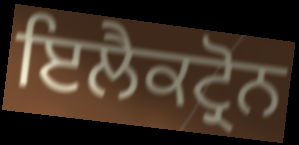
ਇਲੈਕਟ੍ਰੋਨ